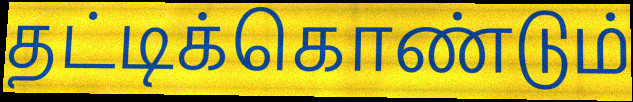
தட்டிக்கொண்டும்